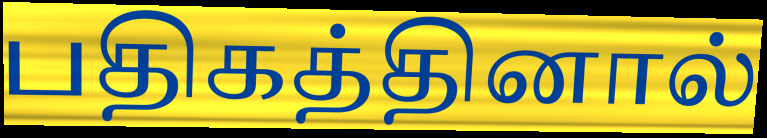
பதிகத்தினால்